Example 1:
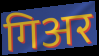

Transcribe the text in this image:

गिअर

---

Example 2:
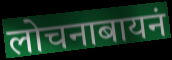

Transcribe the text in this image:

लोचनाबायनं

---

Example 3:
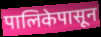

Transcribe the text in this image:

पालिकेपासून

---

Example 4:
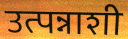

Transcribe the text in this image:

उत्पन्नाशी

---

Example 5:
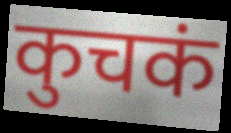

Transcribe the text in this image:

कुचकं